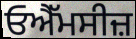
ਓਐੱਮਸੀਜ਼